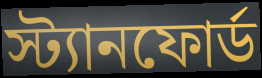
স্ট্যানফোর্ড